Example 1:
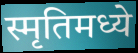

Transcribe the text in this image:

स्मृतिमध्ये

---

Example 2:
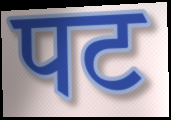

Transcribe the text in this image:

पट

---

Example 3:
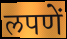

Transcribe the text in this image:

लपणें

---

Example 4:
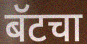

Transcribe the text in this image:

बॅटचा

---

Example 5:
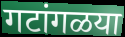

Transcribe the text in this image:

गटांगळया